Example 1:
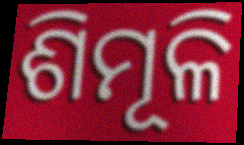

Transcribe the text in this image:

ଶିମୂଳି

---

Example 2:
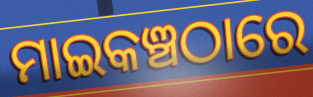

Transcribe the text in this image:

ମାଇକଞ୍ଚଠାରେ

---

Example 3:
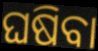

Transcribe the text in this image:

ଘଷିବା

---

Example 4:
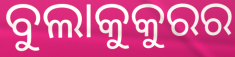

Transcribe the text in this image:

ବୁଲାକୁକୁରର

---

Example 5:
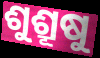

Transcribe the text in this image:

ଶୁଶ୍ରୂଷୁ